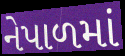
નેપાળમાં